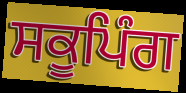
ਸਕੂਪਿੰਗ